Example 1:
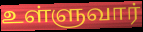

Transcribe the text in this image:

உள்ளுவார்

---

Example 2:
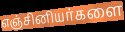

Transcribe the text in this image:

எஞ்சினியர்களை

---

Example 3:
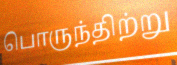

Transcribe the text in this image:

பொருந்திற்று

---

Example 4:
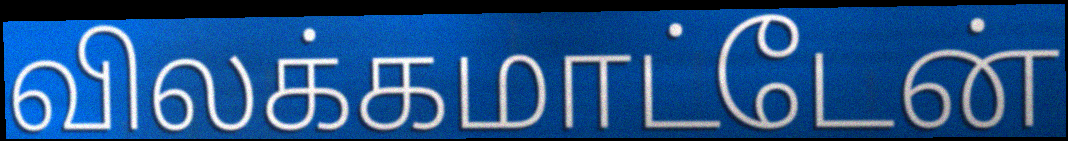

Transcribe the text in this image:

விலக்கமாட்டேன்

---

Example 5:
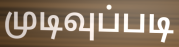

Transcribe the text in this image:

முடிவுப்படி